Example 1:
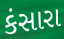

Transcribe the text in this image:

કંસારા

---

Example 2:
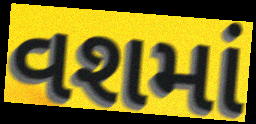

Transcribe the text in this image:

વશમાં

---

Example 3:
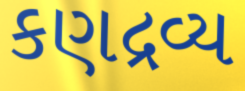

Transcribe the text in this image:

કણદ્રવ્ય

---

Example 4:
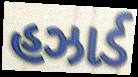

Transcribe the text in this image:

હઝાર્ડ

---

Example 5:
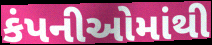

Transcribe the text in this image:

કંપનીઓમાંથી